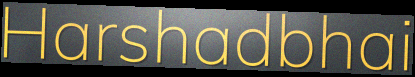
Harshadbhai